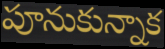
పూనుకున్నాక